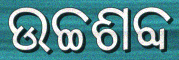
ଉଚ୍ଚଶବ୍ଦ